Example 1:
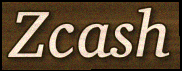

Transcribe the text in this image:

Zcash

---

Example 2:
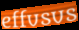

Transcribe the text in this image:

effusus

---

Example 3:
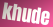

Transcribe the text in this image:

khude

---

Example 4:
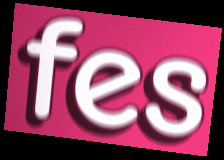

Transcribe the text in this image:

fes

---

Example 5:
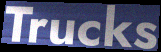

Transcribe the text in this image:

Trucks